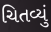
ચિતવ્યું